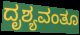
ದೃಶ್ಯವಂತೂ